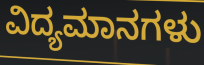
ವಿದ್ಯಮಾನಗಳು